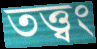
তত্ত্বং